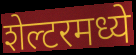
शेल्टरमध्ये